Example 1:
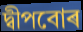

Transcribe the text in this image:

দ্বীপবোৰ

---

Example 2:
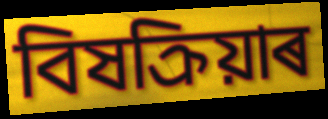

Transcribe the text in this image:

বিষক্ৰিয়াৰ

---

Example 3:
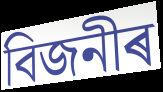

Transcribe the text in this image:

বিজনীৰ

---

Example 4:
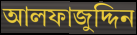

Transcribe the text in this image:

আলফাজুদ্দিন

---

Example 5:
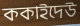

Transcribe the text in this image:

ককাইদেউ